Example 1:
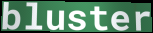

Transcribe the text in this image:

bluster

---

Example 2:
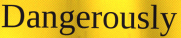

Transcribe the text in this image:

Dangerously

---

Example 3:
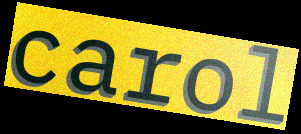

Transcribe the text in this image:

carol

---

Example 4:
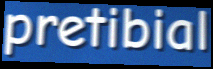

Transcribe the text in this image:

pretibial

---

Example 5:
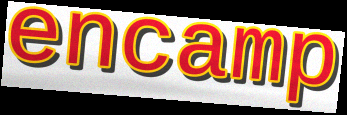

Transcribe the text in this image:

encamp